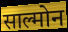
साल्मोन